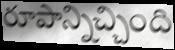
రూపాన్నిచ్చింది